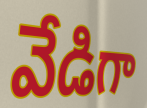
వేడిగా